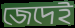
জেদেই